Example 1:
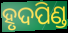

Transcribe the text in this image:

ହୃଦପିଣ୍ଡ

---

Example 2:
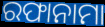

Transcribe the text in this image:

ରଫାନାମା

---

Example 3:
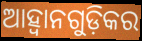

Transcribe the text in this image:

ଆହ୍ୱାନଗୁଡ଼ିକର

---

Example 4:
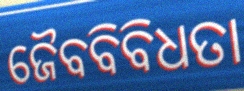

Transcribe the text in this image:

ଜୈବବିବିଧତା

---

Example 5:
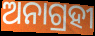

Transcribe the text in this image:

ଅନାଗ୍ରହୀ